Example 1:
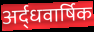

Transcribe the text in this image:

अर्द्धवार्षिक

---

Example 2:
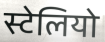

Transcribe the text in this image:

स्टेलियो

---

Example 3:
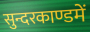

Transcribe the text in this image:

सुन्दरकाण्डमें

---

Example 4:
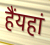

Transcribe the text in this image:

हैंयहां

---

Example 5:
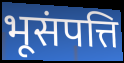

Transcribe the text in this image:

भूसंपत्ति